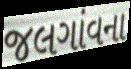
જલગાંવના